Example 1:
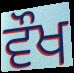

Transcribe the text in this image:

ਵੌਖ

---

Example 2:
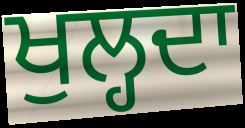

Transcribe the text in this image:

ਖੁਲ੍ਹਦਾ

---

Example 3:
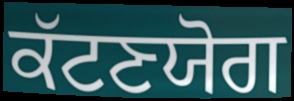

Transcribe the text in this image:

ਕੱਟਣਯੋਗ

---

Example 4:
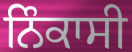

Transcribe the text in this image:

ਨਿੰਕਾਸੀ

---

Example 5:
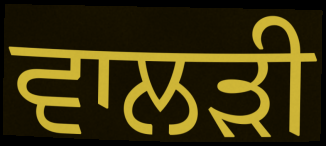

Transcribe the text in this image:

ਵਾਲੜੀ